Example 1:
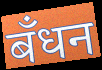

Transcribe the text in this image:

बँधन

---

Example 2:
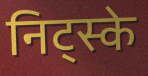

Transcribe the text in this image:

निट्स्के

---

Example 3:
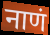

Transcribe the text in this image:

नाणं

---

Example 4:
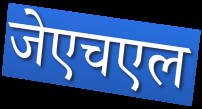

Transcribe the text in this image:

जेएचएल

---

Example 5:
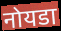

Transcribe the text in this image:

नोयडा